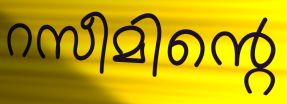
റസീമിന്റെ